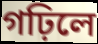
গঢ়িলে